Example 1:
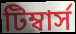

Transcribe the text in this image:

টিম্বার্স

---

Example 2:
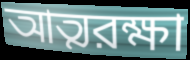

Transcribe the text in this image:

আত্মরক্ষা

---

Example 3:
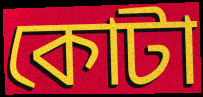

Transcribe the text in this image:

কোটা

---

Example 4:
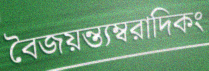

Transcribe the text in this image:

বৈজয়ন্ত্যম্বরাদিকং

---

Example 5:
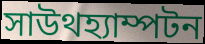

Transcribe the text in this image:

সাউথহ্যাম্পটন